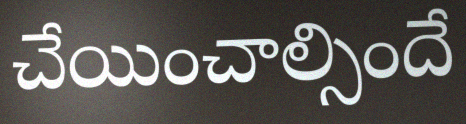
చేయించాల్సిందే